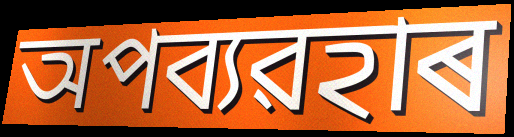
অপব্যৱহাৰ